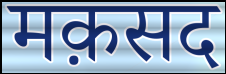
मक़सद